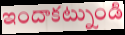
ఇందాకట్నుండి